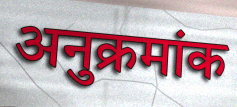
अनुक्रमांक